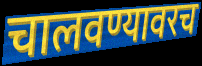
चालवण्यावरच